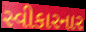
સ્વીકારનાર